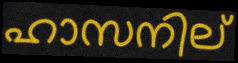
ഹാസനില്